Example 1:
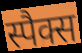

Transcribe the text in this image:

स्पैक्स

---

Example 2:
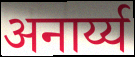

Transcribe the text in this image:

अनार्य्य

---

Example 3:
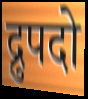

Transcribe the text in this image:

द्रुपदो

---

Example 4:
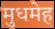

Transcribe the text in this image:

मुधमेह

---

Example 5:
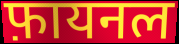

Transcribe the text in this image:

फ़ायनल